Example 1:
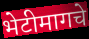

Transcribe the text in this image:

भेटीमागचे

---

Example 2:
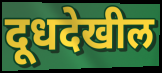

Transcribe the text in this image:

दूधदेखील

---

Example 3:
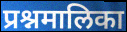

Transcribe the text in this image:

प्रश्नमालिका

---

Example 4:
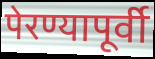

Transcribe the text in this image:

पेरण्यापूर्वी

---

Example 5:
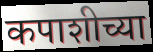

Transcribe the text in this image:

कपाशीच्या